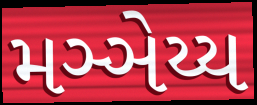
મઞ્ઞેય્ય